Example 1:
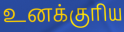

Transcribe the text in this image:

உனக்குரிய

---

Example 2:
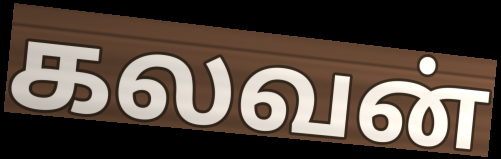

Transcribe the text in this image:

கலவன்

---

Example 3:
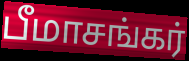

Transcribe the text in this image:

பீமாசங்கர்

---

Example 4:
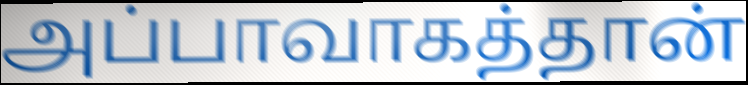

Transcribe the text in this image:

அப்பாவாகத்தான்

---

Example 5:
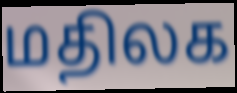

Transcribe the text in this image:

மதிலக